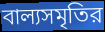
বাল্যসমৃতির